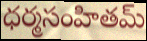
ధర్మసంహితమ్